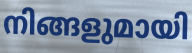
നിങ്ങളുമായി